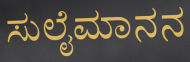
ಸುಲೈಮಾನನ